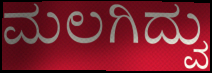
ಮಲಗಿದ್ವು